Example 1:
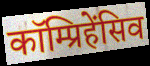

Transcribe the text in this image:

कॉम्प्रिहेंसिव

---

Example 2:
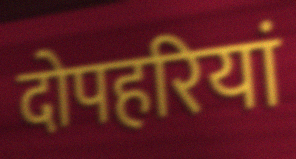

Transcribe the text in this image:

दोपहरियां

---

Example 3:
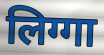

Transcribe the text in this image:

लिग्गा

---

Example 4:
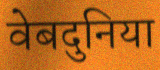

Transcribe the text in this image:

वेबदुनिया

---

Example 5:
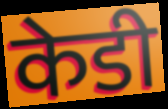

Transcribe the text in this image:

केडी